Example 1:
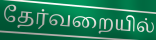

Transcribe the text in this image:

தேர்வறையில்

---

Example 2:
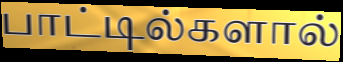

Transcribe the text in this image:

பாட்டில்களால்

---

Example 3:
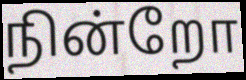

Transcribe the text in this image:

நின்றோ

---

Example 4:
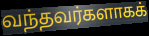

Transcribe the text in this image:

வந்தவர்களாகக்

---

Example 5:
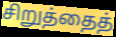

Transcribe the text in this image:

சிறுத்தைத்